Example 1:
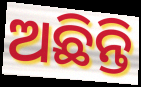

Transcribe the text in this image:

ଅଛିନ୍ତି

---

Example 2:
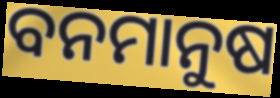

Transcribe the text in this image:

ବନମାନୁଷ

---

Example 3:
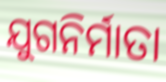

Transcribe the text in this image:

ଯୁଗନିର୍ମାତା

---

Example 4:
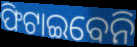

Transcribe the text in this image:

ଫିଟାଇବେନି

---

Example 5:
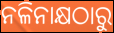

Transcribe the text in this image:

ନଳିନାକ୍ଷଠାରୁ